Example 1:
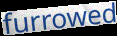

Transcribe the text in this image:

furrowed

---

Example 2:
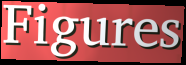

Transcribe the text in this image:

Figures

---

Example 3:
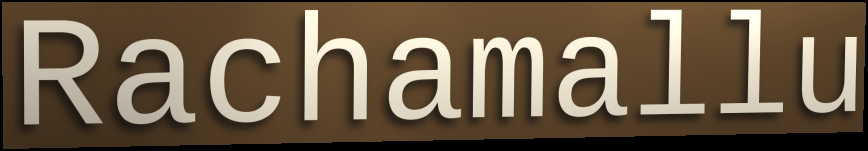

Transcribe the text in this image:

Rachamallu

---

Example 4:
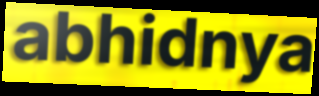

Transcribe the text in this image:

abhidnya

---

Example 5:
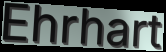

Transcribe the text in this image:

Ehrhart